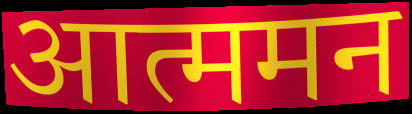
आत्ममन